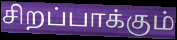
சிறப்பாக்கும்